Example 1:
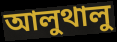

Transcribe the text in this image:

আলুথালু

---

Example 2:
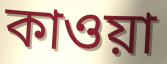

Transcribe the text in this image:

কাওয়া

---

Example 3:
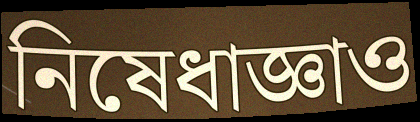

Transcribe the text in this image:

নিষেধাজ্ঞাও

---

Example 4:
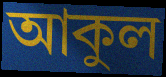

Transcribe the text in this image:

আকুল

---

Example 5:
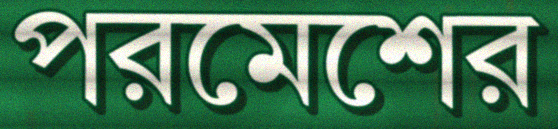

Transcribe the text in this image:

পরমেশের